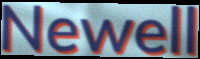
Newell